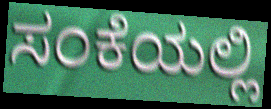
ಸಂಕೆಯಲ್ಲಿ